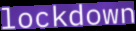
lockdown